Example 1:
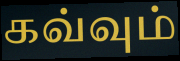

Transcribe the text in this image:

கவ்வும்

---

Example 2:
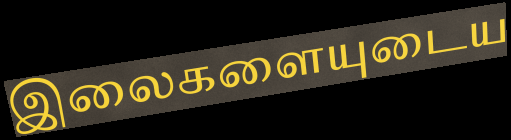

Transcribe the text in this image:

இலைகளையுடைய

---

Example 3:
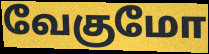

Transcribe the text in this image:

வேகுமோ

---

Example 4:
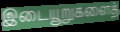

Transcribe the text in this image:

இடையூறுகளைத்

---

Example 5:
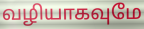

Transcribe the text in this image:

வழியாகவுமே